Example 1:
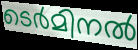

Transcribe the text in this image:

ടെർമിനൽ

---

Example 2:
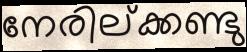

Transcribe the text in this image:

നേരില്ക്കണ്ടു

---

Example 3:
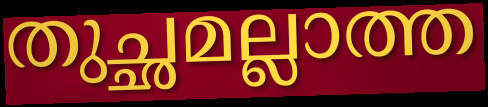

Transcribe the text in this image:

തുച്ഛമല്ലാത്ത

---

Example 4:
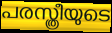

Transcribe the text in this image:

പരസ്ത്രീയുടെ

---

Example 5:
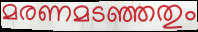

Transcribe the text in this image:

മരണമടഞ്ഞതും